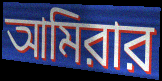
আমিরার